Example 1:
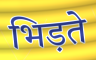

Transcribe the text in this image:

भिड़ते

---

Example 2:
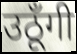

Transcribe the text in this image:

उठूँगी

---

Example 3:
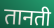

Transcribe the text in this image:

तानती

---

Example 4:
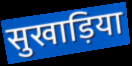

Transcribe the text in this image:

सुखाड़िया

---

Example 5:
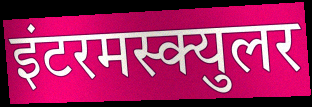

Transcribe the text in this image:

इंटरमस्क्युलर